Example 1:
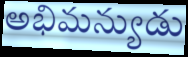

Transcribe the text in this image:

అభిమన్యుడు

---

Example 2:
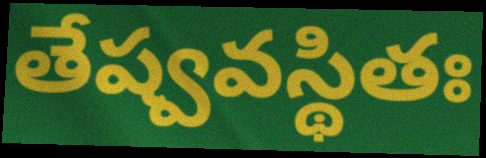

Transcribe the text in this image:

తేష్వవస్థితః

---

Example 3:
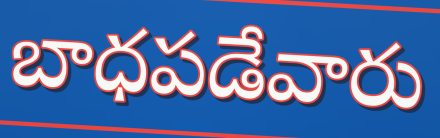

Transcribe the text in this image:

బాధపడేవారు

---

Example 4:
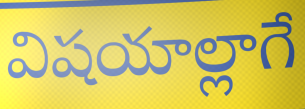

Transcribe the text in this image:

విషయాల్లాగే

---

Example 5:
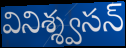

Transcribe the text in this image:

వినిశ్శ్వసన్